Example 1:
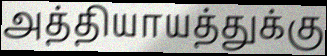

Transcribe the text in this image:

அத்தியாயத்துக்கு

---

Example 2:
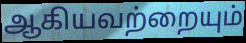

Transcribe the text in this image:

ஆகியவற்றையும்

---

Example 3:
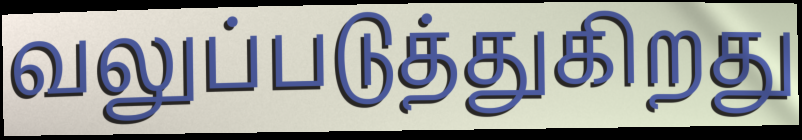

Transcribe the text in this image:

வலுப்படுத்துகிறது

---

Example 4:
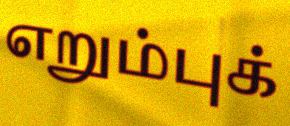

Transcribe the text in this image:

எறும்புக்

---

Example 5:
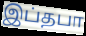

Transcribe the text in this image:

இப்தபா